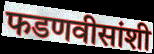
फडणवीसांशी